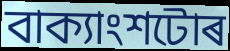
বাক্যাংশটোৰ